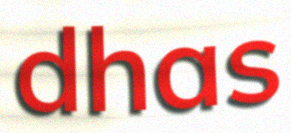
dhas